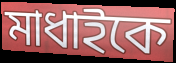
মাধাইকে